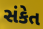
સંકેત